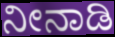
ನೀನಾಡಿ